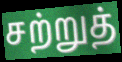
சற்றுத்